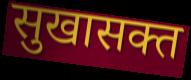
सुखासक्त